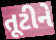
તૂટીને